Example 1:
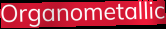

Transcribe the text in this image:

Organometallic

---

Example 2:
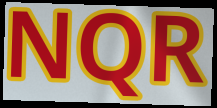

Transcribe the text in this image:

NQR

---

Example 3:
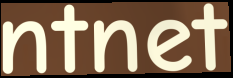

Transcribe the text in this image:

ntnet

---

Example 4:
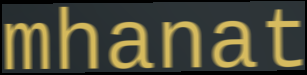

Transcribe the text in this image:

mhanat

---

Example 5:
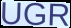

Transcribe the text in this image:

UGR